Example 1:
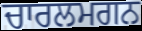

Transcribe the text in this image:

ਚਾਰਲਮਗਨ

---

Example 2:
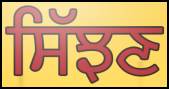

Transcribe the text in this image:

ਸਿੱਝਣ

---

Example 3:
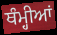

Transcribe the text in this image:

ਥੰਮ੍ਹੀਆਂ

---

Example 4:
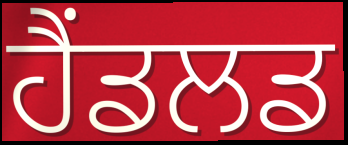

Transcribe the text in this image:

ਹੈਂਡਲਡ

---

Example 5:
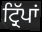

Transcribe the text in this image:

ਟ੍ਰਿੱਪਾਂ